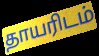
தாயரிடம்